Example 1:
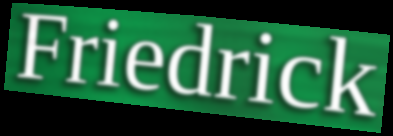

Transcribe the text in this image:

Friedrick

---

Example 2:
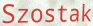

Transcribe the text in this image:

Szostak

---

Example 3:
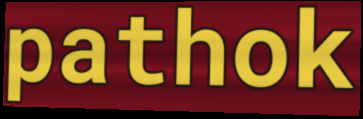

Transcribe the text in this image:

pathok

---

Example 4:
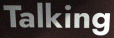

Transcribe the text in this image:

Talking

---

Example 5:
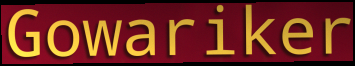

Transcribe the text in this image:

Gowariker